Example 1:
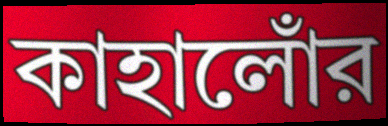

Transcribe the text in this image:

কাহালোঁর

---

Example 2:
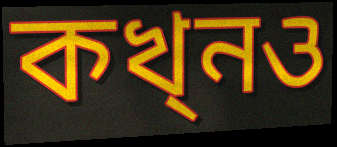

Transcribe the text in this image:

কখ্নও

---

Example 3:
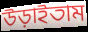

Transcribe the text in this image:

উড়াইতাম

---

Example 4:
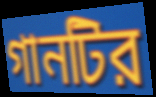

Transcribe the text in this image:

গানটির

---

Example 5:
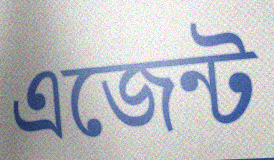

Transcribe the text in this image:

এজেন্ট